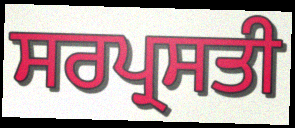
ਸਰਪ੍ਰਸਤੀ